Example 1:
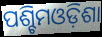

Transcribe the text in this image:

ପଶ୍ଚିମଓଡ଼ିଶା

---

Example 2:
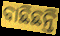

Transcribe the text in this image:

ବାଛିଛନ୍ତି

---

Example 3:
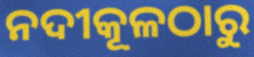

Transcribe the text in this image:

ନଦୀକୂଳଠାରୁ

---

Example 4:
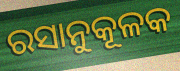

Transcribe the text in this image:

ରସାନୁକୂଳକ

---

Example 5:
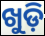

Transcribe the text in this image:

ଖୁଡ଼ି